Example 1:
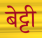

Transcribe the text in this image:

बेट्टी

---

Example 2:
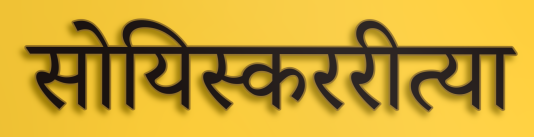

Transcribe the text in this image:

सोयिस्कररीत्या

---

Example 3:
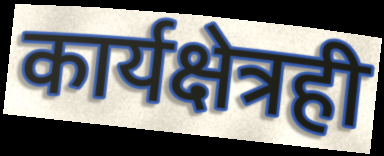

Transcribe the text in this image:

कार्यक्षेत्रही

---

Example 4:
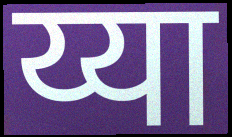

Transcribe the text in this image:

य्या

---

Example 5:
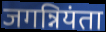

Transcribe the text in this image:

जगन्नियंता